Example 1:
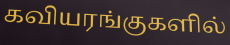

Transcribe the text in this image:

கவியரங்குகளில்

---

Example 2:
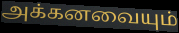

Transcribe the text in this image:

அக்கனவையும்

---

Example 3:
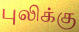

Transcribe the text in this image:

புலிக்கு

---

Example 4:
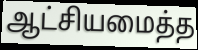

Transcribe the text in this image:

ஆட்சியமைத்த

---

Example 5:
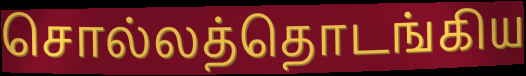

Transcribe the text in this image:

சொல்லத்தொடங்கிய